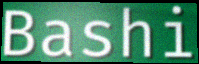
Bashi